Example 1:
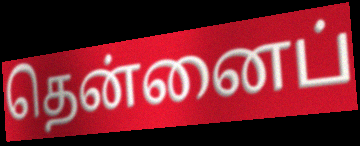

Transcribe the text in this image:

தென்னைப்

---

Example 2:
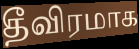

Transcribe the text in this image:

தீவிரமாக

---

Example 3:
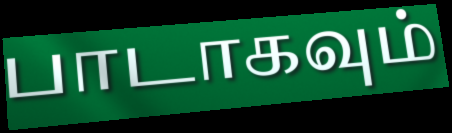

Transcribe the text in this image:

பாடாகவும்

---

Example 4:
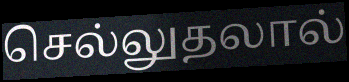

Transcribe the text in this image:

செல்லுதலால்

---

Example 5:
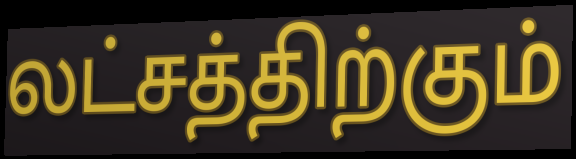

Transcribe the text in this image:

லட்சத்திற்கும்